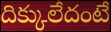
దిక్కులేదంటే